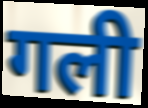
गली